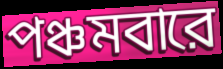
পঞ্চমবারে